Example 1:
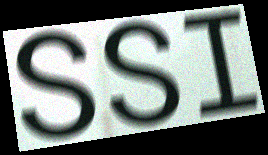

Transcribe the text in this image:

SSI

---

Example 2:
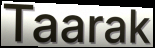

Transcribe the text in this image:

Taarak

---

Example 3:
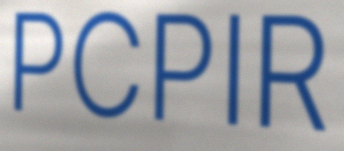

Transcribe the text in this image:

PCPIR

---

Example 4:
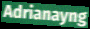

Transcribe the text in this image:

Adrianayng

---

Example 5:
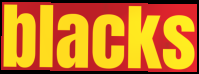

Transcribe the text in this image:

blacks